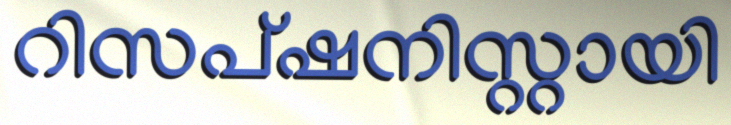
റിസപ്ഷനിസ്റ്റായി